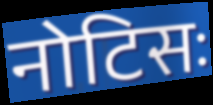
नोटिसः